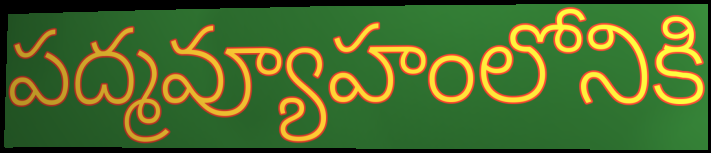
పద్మవ్యూహంలోనికి